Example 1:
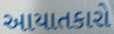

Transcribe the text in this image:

આયાતકારો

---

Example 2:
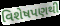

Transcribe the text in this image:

વિશેષપણથી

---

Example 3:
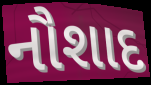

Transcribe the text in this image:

નૌશાદ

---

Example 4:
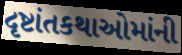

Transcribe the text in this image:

દૃષ્ટાંતકથાઓમાંની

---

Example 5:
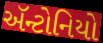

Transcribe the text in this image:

ઍન્ટોનિયો